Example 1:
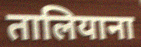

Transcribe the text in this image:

तालियाना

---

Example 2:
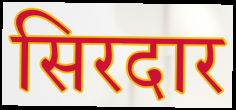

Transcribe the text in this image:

सिरदार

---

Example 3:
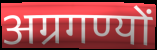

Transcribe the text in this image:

अग्रगण्यों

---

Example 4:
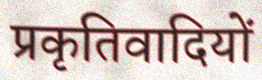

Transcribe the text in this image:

प्रकृतिवादियों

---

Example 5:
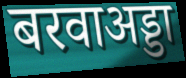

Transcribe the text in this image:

बरवाअड्डा